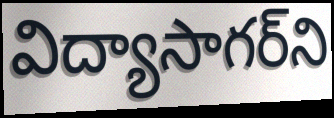
విద్యాసాగర్‌ని